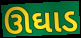
ઊઘાડ